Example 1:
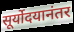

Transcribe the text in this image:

सूर्योदयानंतर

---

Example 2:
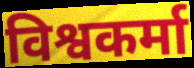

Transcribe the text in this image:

विश्वकर्मा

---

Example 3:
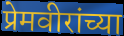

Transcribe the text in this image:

प्रेमवीरांच्या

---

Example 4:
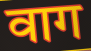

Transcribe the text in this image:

वाग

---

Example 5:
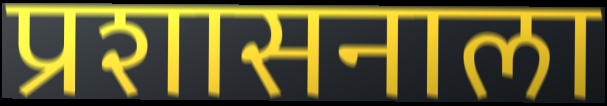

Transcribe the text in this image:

प्रशासनाला